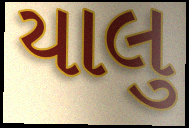
યાલુ